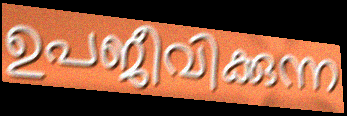
ഉപജീവിക്കുന്ന